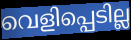
വെളിപ്പെടില്ല